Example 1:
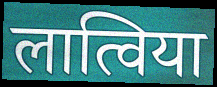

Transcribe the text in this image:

लात्विया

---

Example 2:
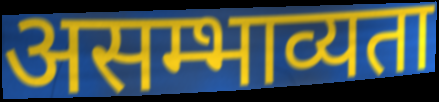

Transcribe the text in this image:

असम्भाव्यता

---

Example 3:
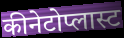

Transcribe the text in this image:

कीनेटोप्लास्ट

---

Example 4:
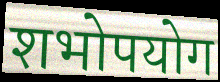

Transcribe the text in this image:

शभोपयोग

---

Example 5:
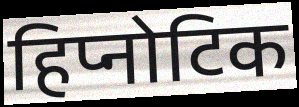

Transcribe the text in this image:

हिप्नोटिक